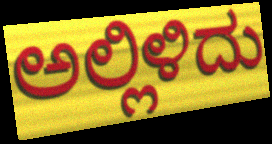
ಅಲ್ಲಿಳಿದು